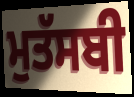
ਮੁਤੱਸਬੀ